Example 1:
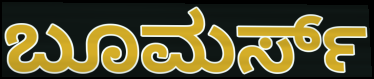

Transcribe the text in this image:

ಬೂಮರ್ಸ್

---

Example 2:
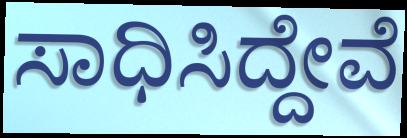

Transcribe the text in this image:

ಸಾಧಿಸಿದ್ದೇವೆ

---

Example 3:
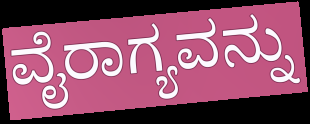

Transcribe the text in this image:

ವೈರಾಗ್ಯವನ್ನು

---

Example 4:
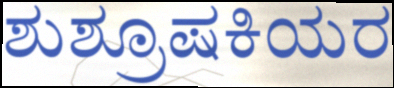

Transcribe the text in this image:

ಶುಶ್ರೂಷಕಿಯರ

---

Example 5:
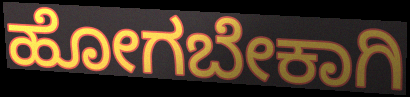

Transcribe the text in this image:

ಹೋಗಬೇಕಾಗಿ